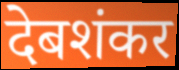
देबशंकर